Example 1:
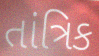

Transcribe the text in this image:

તાંત્રિક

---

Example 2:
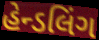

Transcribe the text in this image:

હેન્ડલિંગ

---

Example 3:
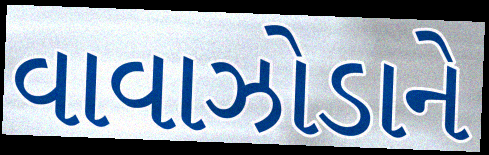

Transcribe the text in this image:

વાવાઝોડાને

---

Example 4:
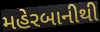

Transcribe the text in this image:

મહેરબાનીથી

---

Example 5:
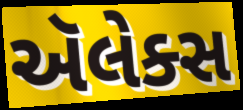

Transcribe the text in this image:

ઍલેક્સ